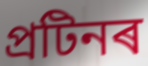
প্ৰটিনৰ